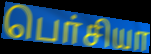
பெர்சியா